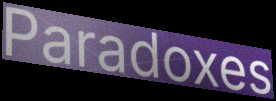
Paradoxes